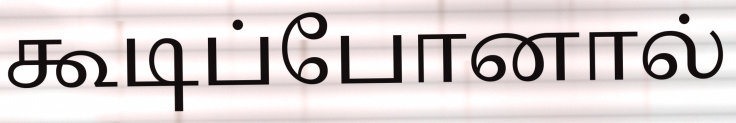
கூடிப்போனால்